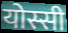
योस्सी